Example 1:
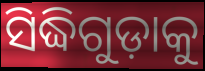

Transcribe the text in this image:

ସିଦ୍ଧିଗୁଡ଼ାକୁ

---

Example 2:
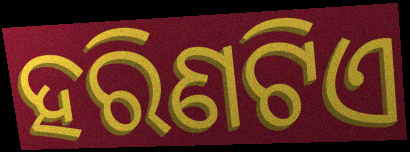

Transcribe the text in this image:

ହରିଣଟିଏ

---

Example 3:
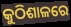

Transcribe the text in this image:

କୁଠିଶାଳରେ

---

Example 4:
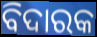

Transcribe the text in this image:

ବିଦାରକ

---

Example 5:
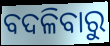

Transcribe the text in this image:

ବଦଳିବାରୁ